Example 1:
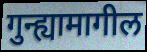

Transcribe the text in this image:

गुन्ह्यामागील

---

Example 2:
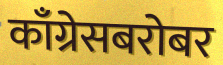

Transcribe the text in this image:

काँग्रेसबरोबर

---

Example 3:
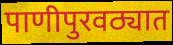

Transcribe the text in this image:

पाणीपुरवठ्यात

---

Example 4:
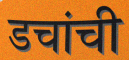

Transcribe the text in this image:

डचांची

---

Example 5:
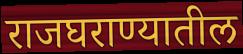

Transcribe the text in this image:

राजघराण्यातील